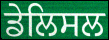
ਡੇਲਿਸਲ